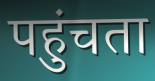
पहुंचता